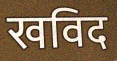
खविद